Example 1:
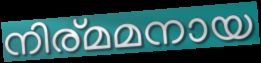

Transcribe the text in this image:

നിര്മമനായ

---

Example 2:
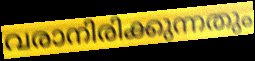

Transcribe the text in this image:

വരാനിരിക്കുന്നതും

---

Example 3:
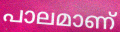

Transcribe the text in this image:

പാലമാണ്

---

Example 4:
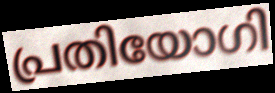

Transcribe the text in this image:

പ്രതിയോഗി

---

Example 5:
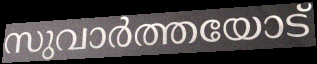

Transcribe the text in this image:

സുവാർത്തയോട്